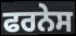
ਫਰਨੇਸ